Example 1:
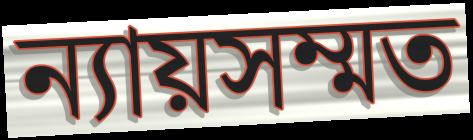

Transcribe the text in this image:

ন্যায়সম্মত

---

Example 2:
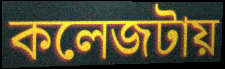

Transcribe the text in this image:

কলেজটায়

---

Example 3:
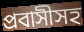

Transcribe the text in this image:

প্রবাসীসহ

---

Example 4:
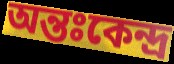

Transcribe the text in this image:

অন্তঃকেন্দ্র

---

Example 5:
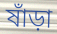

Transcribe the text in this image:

ষাঁড়া